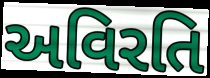
અવિરતિ